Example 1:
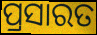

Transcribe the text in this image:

ପ୍ରସାରତ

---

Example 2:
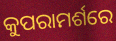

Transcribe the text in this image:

କୁପରାମର୍ଶରେ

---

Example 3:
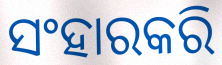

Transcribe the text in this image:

ସଂହାରକରି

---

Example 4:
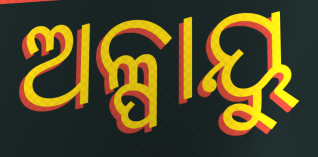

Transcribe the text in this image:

ଅଳ୍ପାୟୁ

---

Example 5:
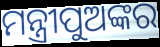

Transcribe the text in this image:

ମନ୍ତ୍ରୀପୁଅଙ୍କର